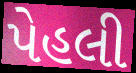
પેહલી